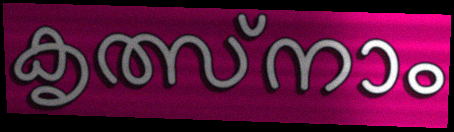
കൃത്സ്നാം